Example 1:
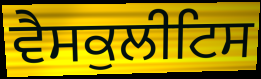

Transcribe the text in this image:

ਵੈਸਕੁਲੀਟਿਸ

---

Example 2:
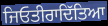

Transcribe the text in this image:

ਜਿਓਤੀਰਾਦਿੱਤਿਆ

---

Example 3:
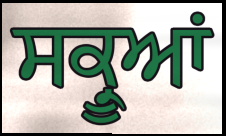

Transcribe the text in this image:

ਸਕ੍ਰੂਆਂ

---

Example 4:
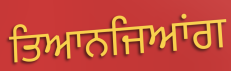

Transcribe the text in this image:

ਤਿਆਨਜਿਆਂਗ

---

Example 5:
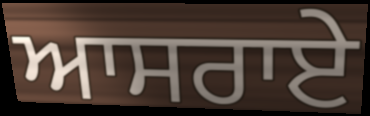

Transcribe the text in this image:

ਆਸਰਾਏ